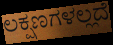
ಲಕ್ಷಣಗಳಲ್ಲದೆ